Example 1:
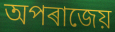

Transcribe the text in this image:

অপৰাজেয়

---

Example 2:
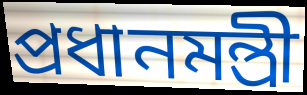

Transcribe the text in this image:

প্ৰধানমন্ত্ৰী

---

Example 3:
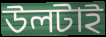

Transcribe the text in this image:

উলটাই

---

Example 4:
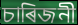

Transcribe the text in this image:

চাৰিজনী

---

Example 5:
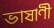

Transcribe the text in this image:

ভাষাণী